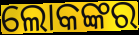
ଲୋକଙ୍କର